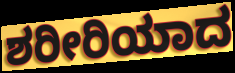
ಶರೀರಿಯಾದ